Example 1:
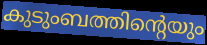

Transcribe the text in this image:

കുടുംബത്തിന്റെയും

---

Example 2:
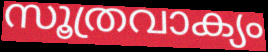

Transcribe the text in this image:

സൂത്രവാക്യം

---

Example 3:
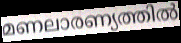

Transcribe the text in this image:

മണലാരണ്യത്തിൽ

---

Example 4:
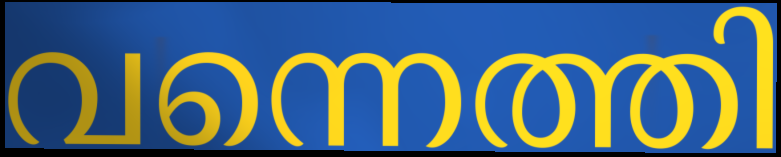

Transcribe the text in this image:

വന്നെത്തി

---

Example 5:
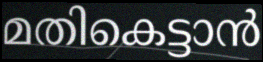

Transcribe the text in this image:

മതികെട്ടാൻ